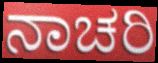
ನಾಚರಿ